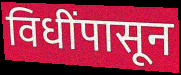
विधींपासून